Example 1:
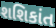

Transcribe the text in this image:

શશિકાંત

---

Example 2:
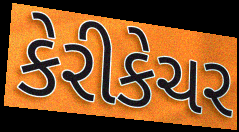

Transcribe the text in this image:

કેરીકેચર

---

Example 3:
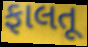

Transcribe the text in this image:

ફાલતૂ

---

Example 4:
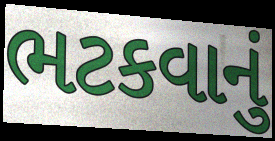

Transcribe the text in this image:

ભટકવાનું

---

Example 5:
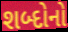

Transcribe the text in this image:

શબ્દોનો